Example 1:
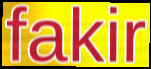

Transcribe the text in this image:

fakir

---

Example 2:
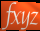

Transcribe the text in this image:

fxyz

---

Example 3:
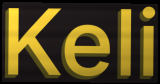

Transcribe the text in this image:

Keli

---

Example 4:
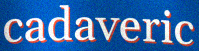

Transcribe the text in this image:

cadaveric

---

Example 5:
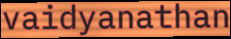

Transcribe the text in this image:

vaidyanathan